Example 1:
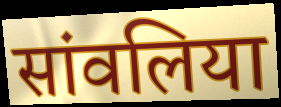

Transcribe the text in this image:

सांवलिया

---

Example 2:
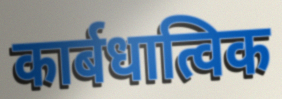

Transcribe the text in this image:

कार्बधात्विक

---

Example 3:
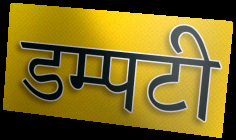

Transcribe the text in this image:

डम्पटी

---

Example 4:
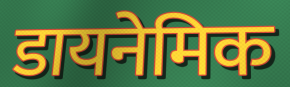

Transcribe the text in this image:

डायनेमिक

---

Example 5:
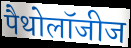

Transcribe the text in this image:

पैथोलॉजीज